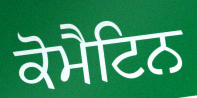
ਕੋਮੈਟਿਨ